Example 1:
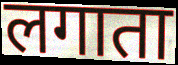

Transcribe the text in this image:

लगाता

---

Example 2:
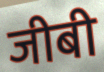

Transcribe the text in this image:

जीबी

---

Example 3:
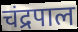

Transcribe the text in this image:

चंद्रपाल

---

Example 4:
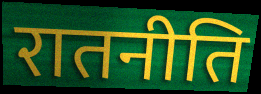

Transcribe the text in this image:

रातनीति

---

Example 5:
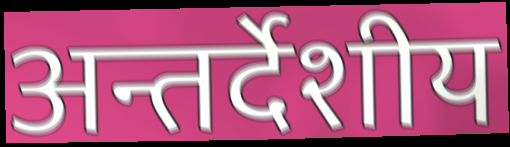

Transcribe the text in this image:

अन्तर्देशीय